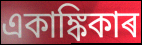
একাঙ্কিকাৰ